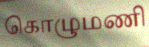
கொழுமணி